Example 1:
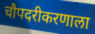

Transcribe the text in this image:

चौपदरीकरणाला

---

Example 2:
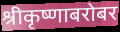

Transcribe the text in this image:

श्रीकृष्णाबरोबर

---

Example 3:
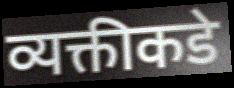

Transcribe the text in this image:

व्यक्तीकडे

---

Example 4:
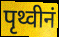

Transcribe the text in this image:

पृथ्वीनं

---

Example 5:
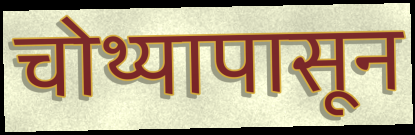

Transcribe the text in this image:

चोथ्यापासून